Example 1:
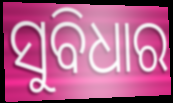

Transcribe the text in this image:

ସୁବିଧାର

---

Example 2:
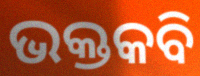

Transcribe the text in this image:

ଭକ୍ତକବି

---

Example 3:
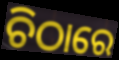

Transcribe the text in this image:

ଚିଠାରେ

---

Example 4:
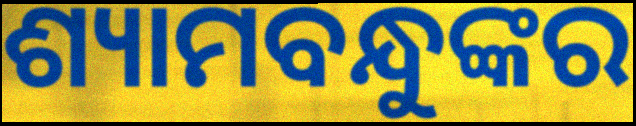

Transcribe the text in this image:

ଶ୍ୟାମବନ୍ଧୁଙ୍କର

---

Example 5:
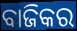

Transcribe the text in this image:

ବାଜିକର